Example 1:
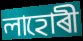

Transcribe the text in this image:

লাহোৰী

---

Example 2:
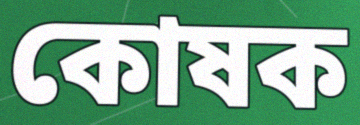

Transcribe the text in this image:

কোষক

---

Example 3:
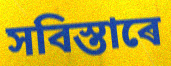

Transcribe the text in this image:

সবিস্তাৰে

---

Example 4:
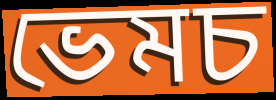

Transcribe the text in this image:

ভেমচ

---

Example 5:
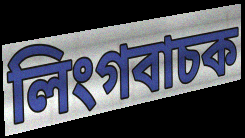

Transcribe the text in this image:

লিংগবাচক